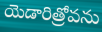
యెడారిత్రోవను